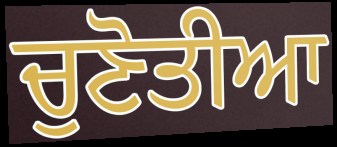
ਚੁਣੋਤੀਆ